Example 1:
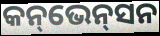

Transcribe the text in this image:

କନ୍‌ଭେନ୍‌ସନ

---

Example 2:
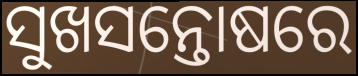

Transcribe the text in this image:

ସୁଖସନ୍ତୋଷରେ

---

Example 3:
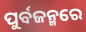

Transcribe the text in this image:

ପୁର୍ବଜନ୍ମରେ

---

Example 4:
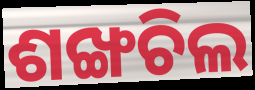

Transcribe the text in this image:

ଶଙ୍ଖଚିଲ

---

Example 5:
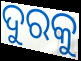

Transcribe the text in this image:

ଦୁରକୁ